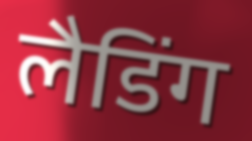
लैडिंग